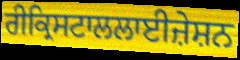
ਰੀਕ੍ਰਿਸਟਾਲਲਾਈਜ਼ੇਸ਼ਨ